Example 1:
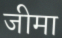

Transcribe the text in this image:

जीमा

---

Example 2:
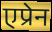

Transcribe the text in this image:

एप्रेन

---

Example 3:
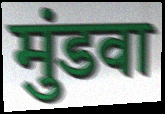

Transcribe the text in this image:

मुंडवा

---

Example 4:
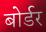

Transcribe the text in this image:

बोर्डर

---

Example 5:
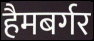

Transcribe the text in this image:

हैमबर्गर